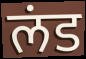
लंड